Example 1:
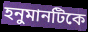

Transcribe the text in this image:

হনুমানটিকে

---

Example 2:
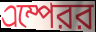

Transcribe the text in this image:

এম্পেরর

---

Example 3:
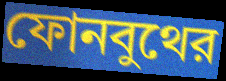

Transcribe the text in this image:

ফোনবুথের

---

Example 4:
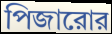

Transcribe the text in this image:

পিজারোর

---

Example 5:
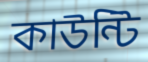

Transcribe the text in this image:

কাউন্টি